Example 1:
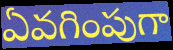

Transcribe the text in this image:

ఏవగింపుగా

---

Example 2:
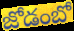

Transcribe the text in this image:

జోడంబో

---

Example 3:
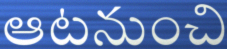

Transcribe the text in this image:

ఆటనుంచి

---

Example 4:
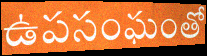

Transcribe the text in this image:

ఉపసంఘంతో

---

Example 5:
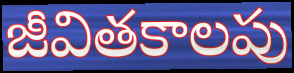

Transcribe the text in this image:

జీవితకాలపు